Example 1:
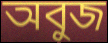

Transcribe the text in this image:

অবুজ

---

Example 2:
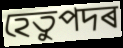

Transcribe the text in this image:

হেতুপদৰ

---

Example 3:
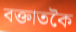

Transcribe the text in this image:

বক্তাতকৈ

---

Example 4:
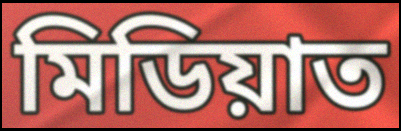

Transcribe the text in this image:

মিডিয়াত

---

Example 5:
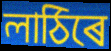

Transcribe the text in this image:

লাঠিৰে